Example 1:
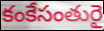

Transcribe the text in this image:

కంకేసంతురై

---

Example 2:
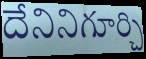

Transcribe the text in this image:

దేనినిగూర్చి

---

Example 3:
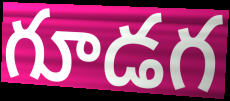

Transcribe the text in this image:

గూడగ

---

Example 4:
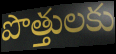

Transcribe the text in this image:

పొత్తులకు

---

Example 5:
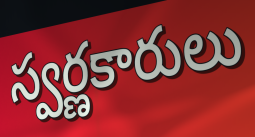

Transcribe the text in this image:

స్వర్ణకారులు